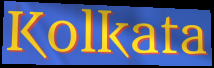
Kolkata